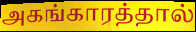
அகங்காரத்தால்